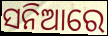
ସନିଆରେ